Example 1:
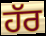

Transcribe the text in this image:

ਹੱਰ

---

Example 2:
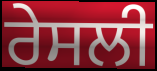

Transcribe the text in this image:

ਰੇਸਲੀ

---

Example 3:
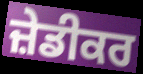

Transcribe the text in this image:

ਜ਼ੇਡੀਕਰ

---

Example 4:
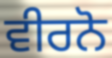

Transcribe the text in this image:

ਵੀਰਨੋ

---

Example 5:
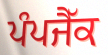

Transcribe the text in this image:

ਪੰਪਜੈੱਕ